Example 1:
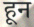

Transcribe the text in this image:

हून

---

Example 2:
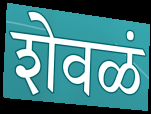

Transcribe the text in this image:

शेवळं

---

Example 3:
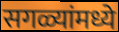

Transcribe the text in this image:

सगळ्यांमध्ये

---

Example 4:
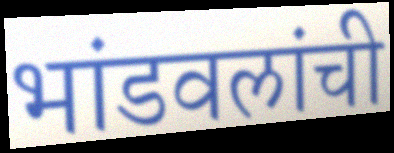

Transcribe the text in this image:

भांडवलांची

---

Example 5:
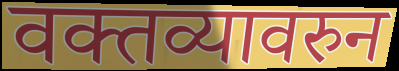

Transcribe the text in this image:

वक्तव्यावरुन